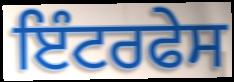
ਇੰਟਰਫੇਸ